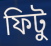
ফিটু